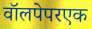
वॉलपेपरएक